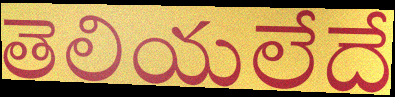
తెలియలేదే